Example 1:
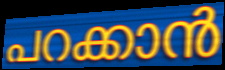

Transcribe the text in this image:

പറക്കാൻ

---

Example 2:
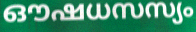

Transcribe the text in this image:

ഔഷധസസ്യം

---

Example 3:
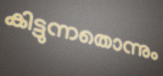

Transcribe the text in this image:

കിട്ടുന്നതൊന്നും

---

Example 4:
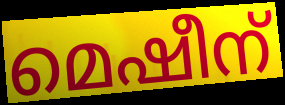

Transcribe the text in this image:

മെഷീന്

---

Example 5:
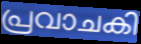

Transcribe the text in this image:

പ്രവാചകി